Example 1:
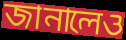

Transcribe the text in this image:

জানালেও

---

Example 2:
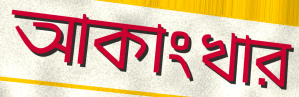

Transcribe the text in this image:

আকাংখার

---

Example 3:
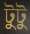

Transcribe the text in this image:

টুটু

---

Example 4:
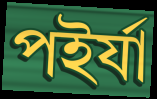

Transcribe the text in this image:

পইর্যা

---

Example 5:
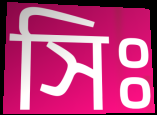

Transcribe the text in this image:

সিঃ